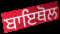
ਬਾਇਥੋਲ